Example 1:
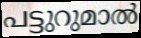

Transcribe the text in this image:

പട്ടുറുമാൽ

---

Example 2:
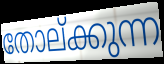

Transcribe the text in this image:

തോല്ക്കുന്ന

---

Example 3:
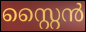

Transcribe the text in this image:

സ്റ്റൈൻ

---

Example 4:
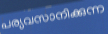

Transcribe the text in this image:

പര്യവസാനിക്കുന്ന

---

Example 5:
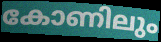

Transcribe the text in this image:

കോണിലും